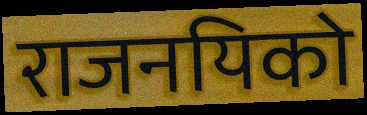
राजनयिको